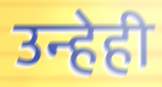
उन्हेही